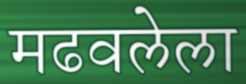
मढवलेला